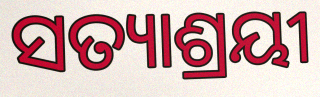
ସତ୍ୟାଶ୍ରୟୀ